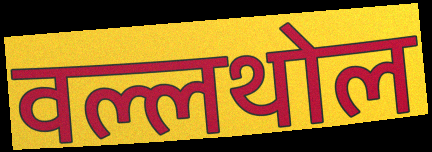
वल्लथोल